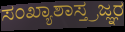
ಸಂಖ್ಯಾಶಾಸ್ತ್ರಜ್ಞರ